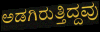
ಅಡಗಿರುತ್ತಿದ್ದವು